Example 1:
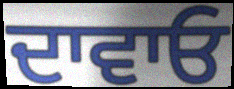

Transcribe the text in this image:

ਦਾਵਾਓ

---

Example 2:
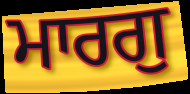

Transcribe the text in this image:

ਮਾਰਗੁ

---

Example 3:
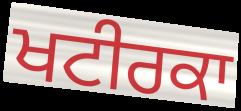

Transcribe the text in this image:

ਖਟੀਰਕਾ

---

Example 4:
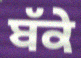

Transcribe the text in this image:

ਬੱਕੇ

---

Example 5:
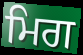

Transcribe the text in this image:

ਮਿਗ